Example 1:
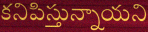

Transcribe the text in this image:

కనిపిస్తున్నాయని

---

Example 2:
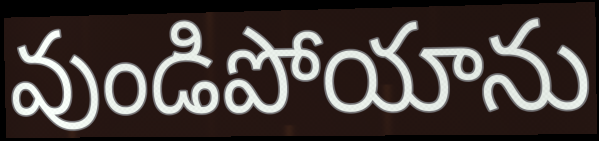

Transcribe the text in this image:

వుండిపోయాను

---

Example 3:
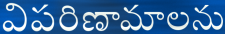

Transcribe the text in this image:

విపరిణామాలను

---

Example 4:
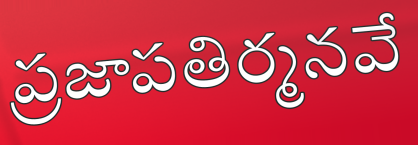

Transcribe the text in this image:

ప్రజాపతిర్మనవే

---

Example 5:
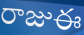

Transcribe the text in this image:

రాజుఈ